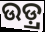
ଉଡ଼୍ର